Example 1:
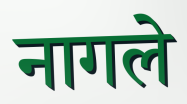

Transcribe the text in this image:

नागले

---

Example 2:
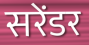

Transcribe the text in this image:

सरेंडर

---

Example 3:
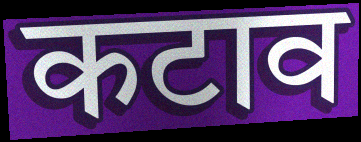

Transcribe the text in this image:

कटाव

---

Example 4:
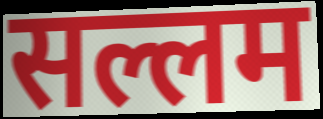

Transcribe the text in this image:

सल्लम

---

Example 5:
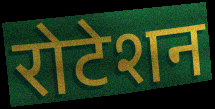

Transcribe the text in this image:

रोटेशन